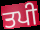
ਤਪੀ